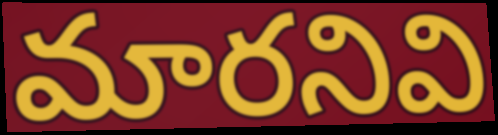
మారనివి